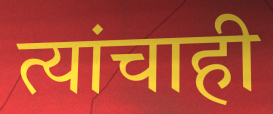
त्यांचाही